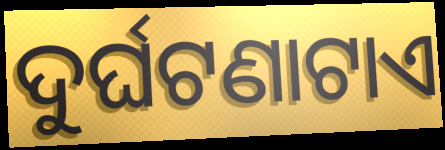
ଦୁର୍ଘଟଣାଟାଏ